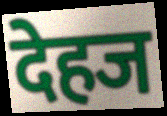
देहज